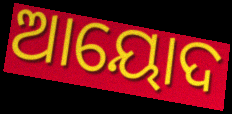
ଆୟୋଦ